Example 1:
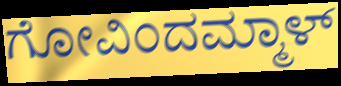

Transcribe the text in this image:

ಗೋವಿಂದಮ್ಮಾಳ್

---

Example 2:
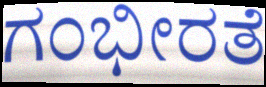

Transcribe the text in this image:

ಗಂಭೀರತೆ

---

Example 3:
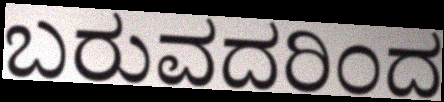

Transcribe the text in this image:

ಬರುವದರಿಂದ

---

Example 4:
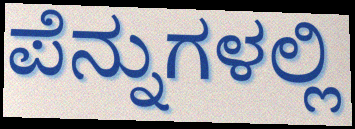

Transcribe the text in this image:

ಪೆನ್ನುಗಳಲ್ಲಿ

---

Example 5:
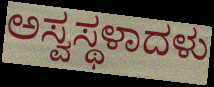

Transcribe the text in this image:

ಅಸ್ವಸ್ಥಳಾದಳು